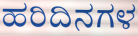
ಹರಿದಿನಗಳ